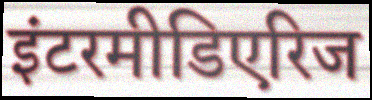
इंटरमीडिएरिज